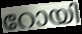
റോയി